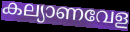
കല്യാണവേള